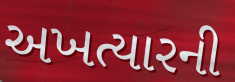
અખત્યારની